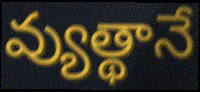
వ్యుత్థానే